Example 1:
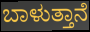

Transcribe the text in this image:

ಬಾಳುತ್ತಾನೆ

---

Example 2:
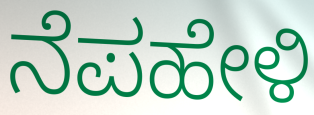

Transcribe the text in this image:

ನೆಪಹೇಳಿ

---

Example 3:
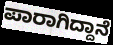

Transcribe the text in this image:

ಪಾರಾಗಿದ್ದಾನೆ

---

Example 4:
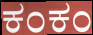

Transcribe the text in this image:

ಕಂಕಂ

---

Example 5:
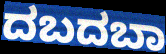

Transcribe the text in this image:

ದಬದಬಾ